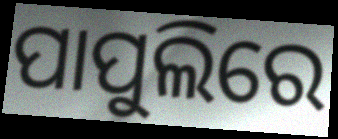
ପାପୁଲିରେ